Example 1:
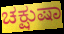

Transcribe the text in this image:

ಚಕ್ಷುಷಾ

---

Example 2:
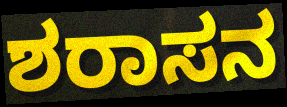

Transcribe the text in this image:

ಶರಾಸನ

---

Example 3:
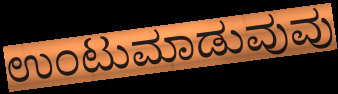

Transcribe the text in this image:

ಉಂಟುಮಾಡುವುವು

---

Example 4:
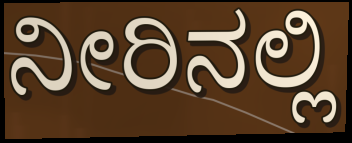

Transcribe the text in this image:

ನೀರಿನಲ್ಲಿ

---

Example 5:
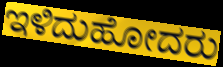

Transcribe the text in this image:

ಇಳಿದುಹೋದರು